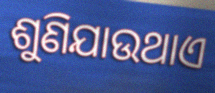
ଶୁଣିଯାଉଥାଏ